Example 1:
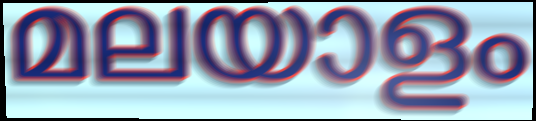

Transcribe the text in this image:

മലയാളം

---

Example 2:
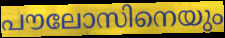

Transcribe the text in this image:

പൗലോസിനെയും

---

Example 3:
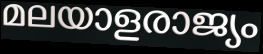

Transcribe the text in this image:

മലയാളരാജ്യം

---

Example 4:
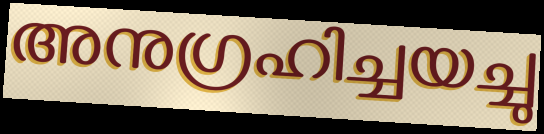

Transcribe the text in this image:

അനുഗ്രഹിച്ചയച്ചു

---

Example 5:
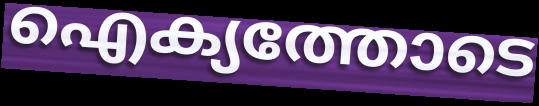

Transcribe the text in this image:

ഐക്യത്തോടെ